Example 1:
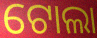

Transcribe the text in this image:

ଟୋଲା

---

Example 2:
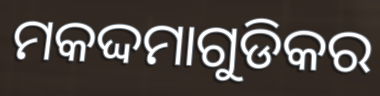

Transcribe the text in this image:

ମକଦ୍ଦମାଗୁଡିକର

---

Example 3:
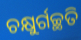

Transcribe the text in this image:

ଚକ୍ଷୁର୍ଗଚ୍ଛତି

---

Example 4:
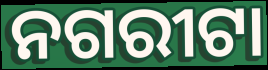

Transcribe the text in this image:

ନଗରୀଟା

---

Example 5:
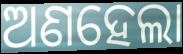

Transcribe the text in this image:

ଅଣହେଲା